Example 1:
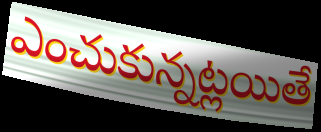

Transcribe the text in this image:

ఎంచుకున్నట్లయితే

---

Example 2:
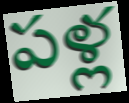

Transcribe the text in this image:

పళ్ల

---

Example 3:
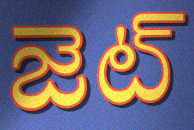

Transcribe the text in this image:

జెట్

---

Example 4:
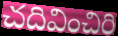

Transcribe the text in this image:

చదివించిరి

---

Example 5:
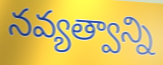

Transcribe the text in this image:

నవ్యత్వాన్ని